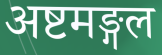
अष्टमङ्गल